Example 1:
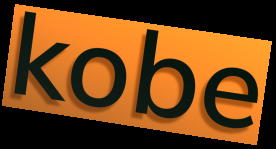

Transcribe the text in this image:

kobe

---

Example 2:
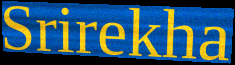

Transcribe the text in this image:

Srirekha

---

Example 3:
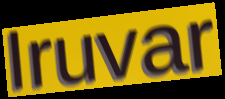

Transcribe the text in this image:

Iruvar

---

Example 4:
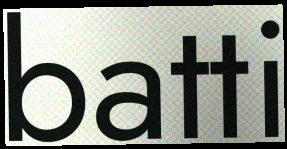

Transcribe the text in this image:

batti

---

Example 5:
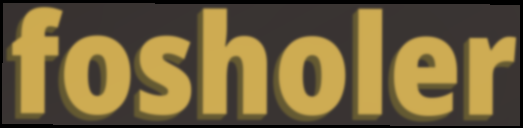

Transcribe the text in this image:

fosholer